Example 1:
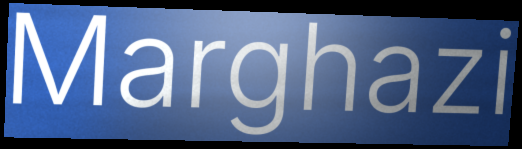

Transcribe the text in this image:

Marghazi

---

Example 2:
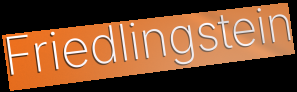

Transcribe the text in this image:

Friedlingstein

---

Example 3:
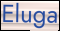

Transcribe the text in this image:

Eluga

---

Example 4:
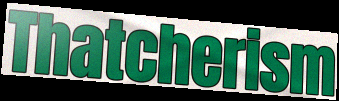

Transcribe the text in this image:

Thatcherism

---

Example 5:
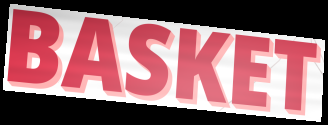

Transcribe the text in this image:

BASKET